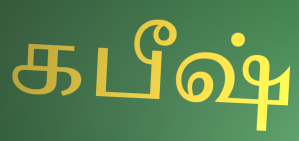
கபீஷ்